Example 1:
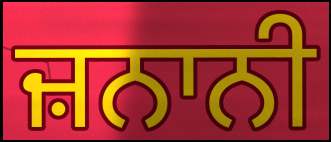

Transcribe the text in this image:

ਜ਼ਨਾਨੀ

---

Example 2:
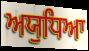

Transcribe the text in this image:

ਅਯੁਧਿਆ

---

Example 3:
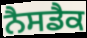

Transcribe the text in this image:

ਨੈਸਡੈਕ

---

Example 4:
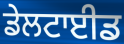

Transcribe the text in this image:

ਡੇਲਟਾਈਡ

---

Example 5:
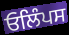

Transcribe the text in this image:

ਓਲਿੰਪਸ